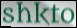
shkto